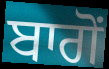
ਬਾਗੋਂ